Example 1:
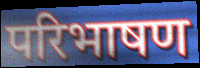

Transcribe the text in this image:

परिभाषण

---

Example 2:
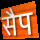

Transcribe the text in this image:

सैप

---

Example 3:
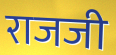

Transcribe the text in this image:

राजजी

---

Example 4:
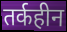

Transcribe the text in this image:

तर्कहीन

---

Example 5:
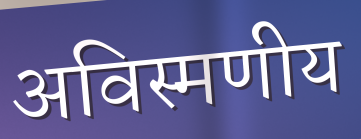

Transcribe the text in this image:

अविस्मणीय